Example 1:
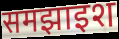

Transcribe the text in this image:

समझाइश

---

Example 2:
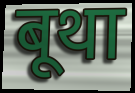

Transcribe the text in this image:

बूथा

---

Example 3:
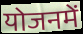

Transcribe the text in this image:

योजनमें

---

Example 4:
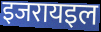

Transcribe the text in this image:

इजरायइल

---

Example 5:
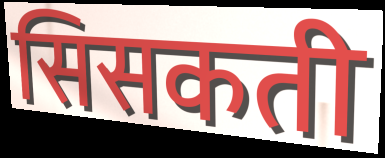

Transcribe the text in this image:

सिसकती